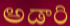
అడారి